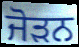
ਜੋੜਨ